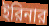
ইরিনার